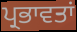
ਪ੍ਰਭਾਵਤਾਂ